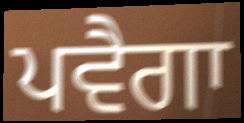
ਪਵੈਗਾ